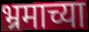
भ्रमाच्या